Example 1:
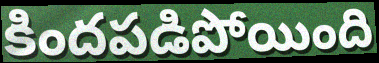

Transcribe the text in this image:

కిందపడిపోయింది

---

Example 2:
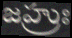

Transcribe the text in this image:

జహ్రుః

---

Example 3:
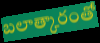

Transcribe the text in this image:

బలాత్కారంతో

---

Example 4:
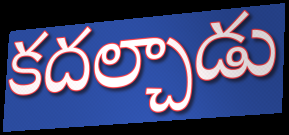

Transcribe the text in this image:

కదల్చాడు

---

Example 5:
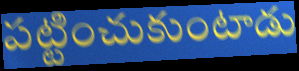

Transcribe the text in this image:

పట్టించుకుంటాడు